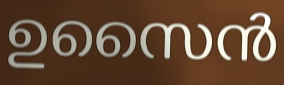
ഉസൈൻ